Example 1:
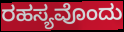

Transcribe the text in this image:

ರಹಸ್ಯವೊಂದು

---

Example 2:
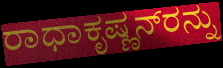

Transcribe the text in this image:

ರಾಧಾಕೃಷ್ಣನ್‌ರನ್ನು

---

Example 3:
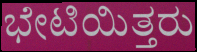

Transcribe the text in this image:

ಭೇಟಿಯಿತ್ತರು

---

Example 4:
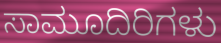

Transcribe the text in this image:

ಸಾಮೂದಿರಿಗಳು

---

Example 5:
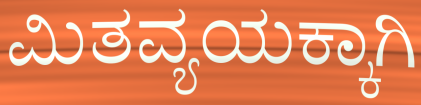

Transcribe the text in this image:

ಮಿತವ್ಯಯಕ್ಕಾಗಿ